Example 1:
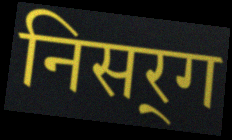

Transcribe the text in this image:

निसर्ग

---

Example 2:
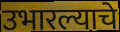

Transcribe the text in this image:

उभारल्याचे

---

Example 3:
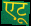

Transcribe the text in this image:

एटू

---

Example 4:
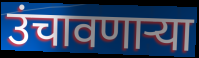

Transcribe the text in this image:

उंचावणाऱ्या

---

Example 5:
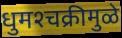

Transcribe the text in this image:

धुमश्चक्रीमुळे